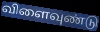
விளைவுண்டு